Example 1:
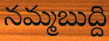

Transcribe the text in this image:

నమ్మబుద్ది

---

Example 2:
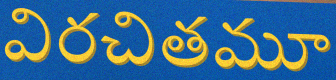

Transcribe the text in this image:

విరచితమూ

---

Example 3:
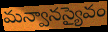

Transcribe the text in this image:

మన్వానస్యైవం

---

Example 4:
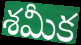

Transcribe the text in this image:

శమీక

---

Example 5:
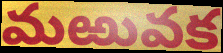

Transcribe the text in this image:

మఱువక